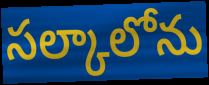
సల్కాలోను